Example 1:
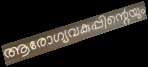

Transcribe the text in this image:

ആരോഗ്യവകുപ്പിന്റെയും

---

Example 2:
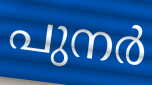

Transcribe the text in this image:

പുനർ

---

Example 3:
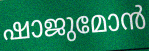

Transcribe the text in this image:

ഷാജുമോൻ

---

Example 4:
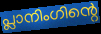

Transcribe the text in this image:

പ്ലാനിംഗിന്റെ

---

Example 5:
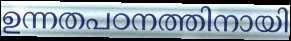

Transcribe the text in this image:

ഉന്നതപഠനത്തിനായി